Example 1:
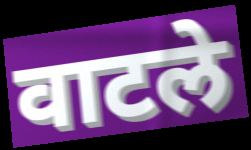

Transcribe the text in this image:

वाटले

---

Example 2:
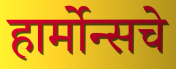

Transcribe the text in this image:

हार्मोन्सचे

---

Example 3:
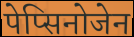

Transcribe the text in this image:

पेप्सिनोजेन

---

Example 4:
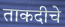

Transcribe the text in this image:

ताकदीचे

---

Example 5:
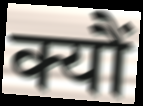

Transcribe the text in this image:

क्यौं